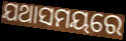
ଯଥାସମୟରେ